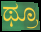
ಥ್ರೂ